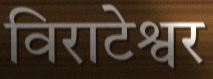
विराटेश्वर